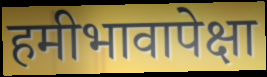
हमीभावापेक्षा